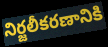
నిర్జలీకరణానికి